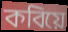
কবিয়ে